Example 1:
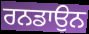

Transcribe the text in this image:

ਰਨਡਾਉਨ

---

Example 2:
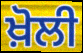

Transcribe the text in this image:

ਖ਼ੋਲੀ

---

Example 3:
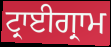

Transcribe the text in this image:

ਟ੍ਰਾਈਗ੍ਰਾਮ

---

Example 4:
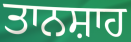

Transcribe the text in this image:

ਤਾਨਸ਼ਾਹ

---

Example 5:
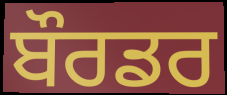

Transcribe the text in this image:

ਬੌਰਡਰ